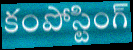
కంపోస్టింగ్